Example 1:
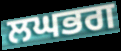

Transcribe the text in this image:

ਲਘਭਗ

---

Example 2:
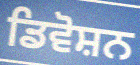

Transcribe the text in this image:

ਡਿਵੋਸ਼ਨ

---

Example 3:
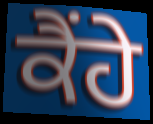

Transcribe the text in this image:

ਕੈਂਹੇ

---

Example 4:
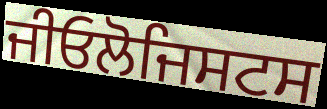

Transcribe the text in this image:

ਜੀਓਲੋਜਿਸਟਸ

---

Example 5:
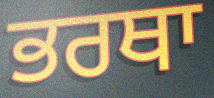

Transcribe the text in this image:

ਭਰਥਾ